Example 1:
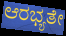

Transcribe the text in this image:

ಆರಭ್ಯತೇ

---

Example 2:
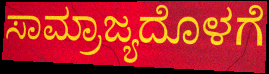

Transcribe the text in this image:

ಸಾಮ್ರಾಜ್ಯದೊಳಗೆ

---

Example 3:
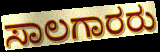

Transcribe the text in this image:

ಸಾಲಗಾರರು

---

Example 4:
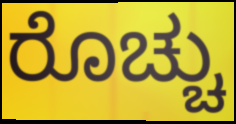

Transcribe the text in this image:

ರೊಚ್ಚು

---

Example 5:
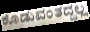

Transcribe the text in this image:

ಕೊಡುವಂತದ್ದಲ್ಲ